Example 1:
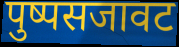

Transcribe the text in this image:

पुष्पसजावट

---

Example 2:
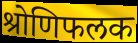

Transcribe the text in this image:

श्रोणिफलक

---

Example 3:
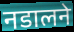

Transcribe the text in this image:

नडालने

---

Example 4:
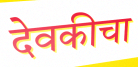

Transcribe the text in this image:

देवकीचा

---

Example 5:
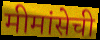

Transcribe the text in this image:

मीमांसेची